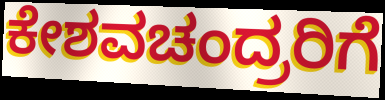
ಕೇಶವಚಂದ್ರರಿಗೆ